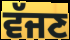
ਵੱਜਣ